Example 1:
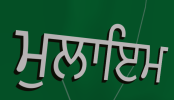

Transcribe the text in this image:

ਮੁਲਾਇਮ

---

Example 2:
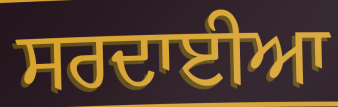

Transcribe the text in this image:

ਸਰਦਾਈਆ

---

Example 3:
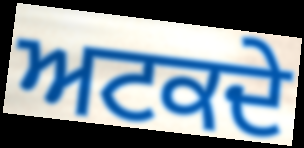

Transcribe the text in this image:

ਅਟਕਦੇ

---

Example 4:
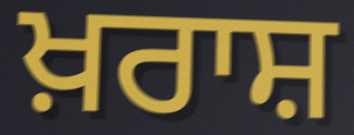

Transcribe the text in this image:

ਖ਼ਰਾਸ਼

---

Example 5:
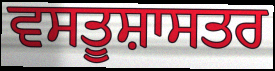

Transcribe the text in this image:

ਵਸਤੂਸ਼ਾਸਤਰ